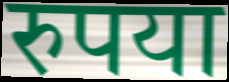
रुपया